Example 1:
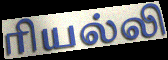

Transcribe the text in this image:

ரியல்லி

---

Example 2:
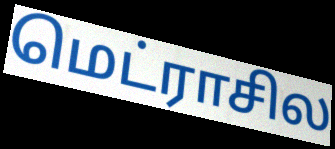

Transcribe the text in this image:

மெட்ராசில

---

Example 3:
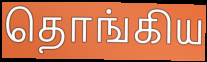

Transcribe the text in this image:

தொங்கிய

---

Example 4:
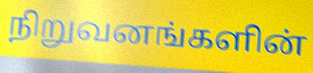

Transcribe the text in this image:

நிறுவனங்களின்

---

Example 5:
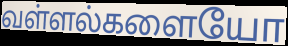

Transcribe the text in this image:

வள்ளல்களையோ